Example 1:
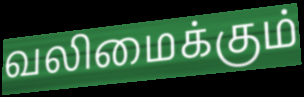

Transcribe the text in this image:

வலிமைக்கும்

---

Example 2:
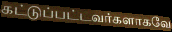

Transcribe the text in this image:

கட்டுப்பட்டவர்களாகவே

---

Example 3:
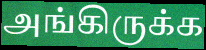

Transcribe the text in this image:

அங்கிருக்க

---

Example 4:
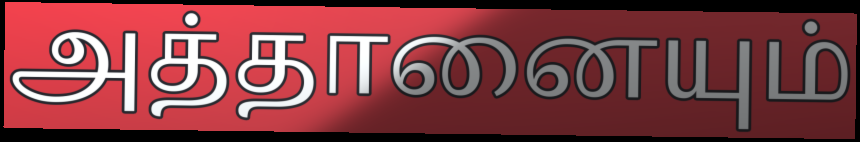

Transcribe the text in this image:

அத்தானையும்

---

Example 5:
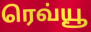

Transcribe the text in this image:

ரெவ்யூ